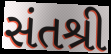
સંતશ્રી